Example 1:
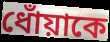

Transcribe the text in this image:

ধোঁয়াকে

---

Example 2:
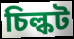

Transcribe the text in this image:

চিল্কট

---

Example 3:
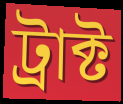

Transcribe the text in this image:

ট্রাক্ট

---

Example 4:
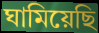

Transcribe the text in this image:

ঘামিয়েছি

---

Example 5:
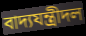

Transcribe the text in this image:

বাদ্যযন্ত্রীদল